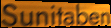
Sunitaben